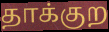
தாக்குற